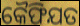
କୈଫିଯତ